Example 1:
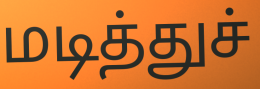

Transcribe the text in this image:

மடித்துச்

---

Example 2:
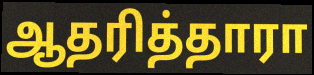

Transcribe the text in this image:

ஆதரித்தாரா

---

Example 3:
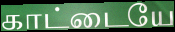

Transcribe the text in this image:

காட்டையே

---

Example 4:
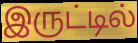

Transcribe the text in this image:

இருட்டில்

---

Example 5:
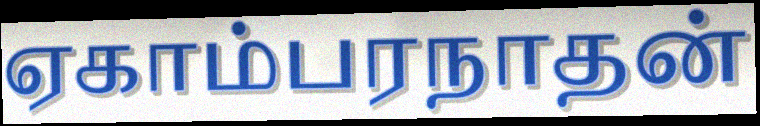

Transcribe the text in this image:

ஏகாம்பரநாதன்